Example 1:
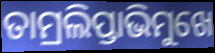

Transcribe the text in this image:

ତାମ୍ରଲିପ୍ତାଭିମୁଖେ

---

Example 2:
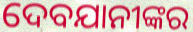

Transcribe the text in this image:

ଦେବଯାନୀଙ୍କର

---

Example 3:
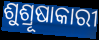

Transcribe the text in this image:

ଶୁଶ୍ରୂଷାକାରୀ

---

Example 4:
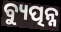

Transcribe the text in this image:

ବ୍ୟୁତ୍ପନ୍ନ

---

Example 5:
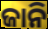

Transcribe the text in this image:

ଜାନି